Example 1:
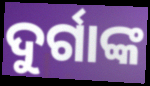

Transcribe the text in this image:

ଦୁର୍ଗାଙ୍କ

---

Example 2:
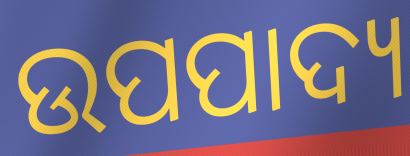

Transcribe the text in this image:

ଉପପାଦ୍ୟ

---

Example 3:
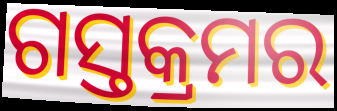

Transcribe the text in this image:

ଗସ୍ତକ୍ରମର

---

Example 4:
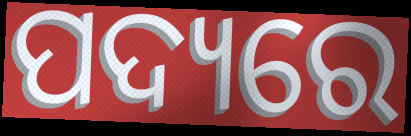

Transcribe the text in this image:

ପଦ୍ୟରେ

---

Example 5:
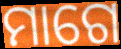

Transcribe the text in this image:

ମାଗେ